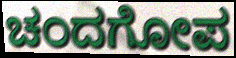
ಚಂದಗೋಪ